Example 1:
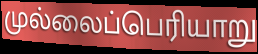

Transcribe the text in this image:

முல்லைப்பெரியாறு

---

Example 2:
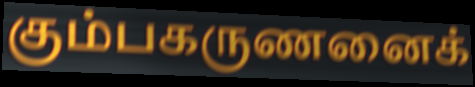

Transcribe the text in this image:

கும்பகருணனைக்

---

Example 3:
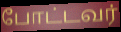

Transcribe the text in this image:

போட்டவர்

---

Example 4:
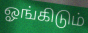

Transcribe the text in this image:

ஓங்கிடும்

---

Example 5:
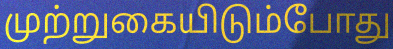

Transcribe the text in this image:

முற்றுகையிடும்போது